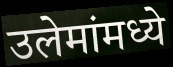
उलेमांमध्ये